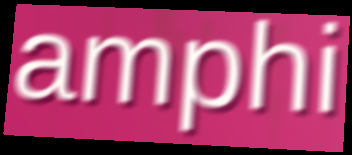
amphi